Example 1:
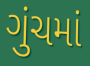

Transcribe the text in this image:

ગુંચમાં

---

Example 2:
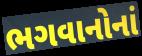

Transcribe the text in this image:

ભગવાનોનાં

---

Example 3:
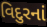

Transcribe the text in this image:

વિદુરનાં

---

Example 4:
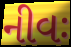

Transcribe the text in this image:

નીવઃ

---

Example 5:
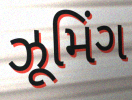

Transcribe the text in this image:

ઝૂમિંગ